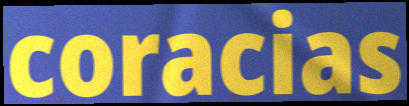
coracias